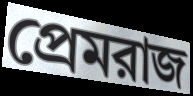
প্রেমরাজ